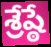
శ్రేష్ఠే